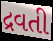
દ્રવતી